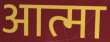
आत्मा